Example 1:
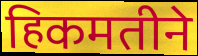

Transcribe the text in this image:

हिकमतीने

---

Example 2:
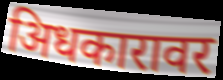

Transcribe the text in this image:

अिधकारावर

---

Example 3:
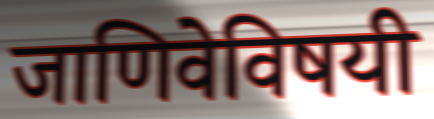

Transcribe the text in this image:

जाणिवेविषयी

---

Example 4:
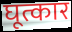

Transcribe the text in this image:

घूत्कार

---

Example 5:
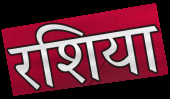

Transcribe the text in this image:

रशिया